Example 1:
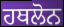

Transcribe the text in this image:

ਹਥਲੋਨ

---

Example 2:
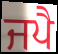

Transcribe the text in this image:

ਜਪੈ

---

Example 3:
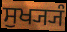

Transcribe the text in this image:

ਸੁਖ੍ਯ੍ਯੰ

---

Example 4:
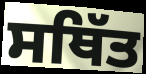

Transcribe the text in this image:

ਸਥਿੱਤ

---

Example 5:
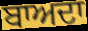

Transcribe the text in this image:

ਬਾਅਦਾ